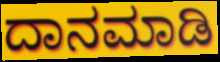
ದಾನಮಾಡಿ